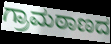
ಗ್ರಾಮಠಾಣದ